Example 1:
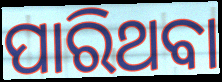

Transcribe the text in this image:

ପାରିଥବା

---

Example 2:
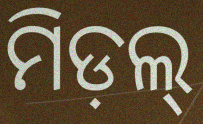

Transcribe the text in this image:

ମିଡ଼ଲ୍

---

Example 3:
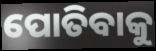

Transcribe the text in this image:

ପୋତିବାକୁ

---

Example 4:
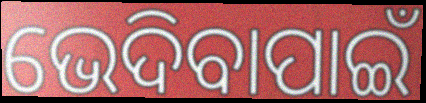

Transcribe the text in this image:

ଭେଦିବାପାଇଁ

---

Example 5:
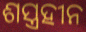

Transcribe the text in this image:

ଶସ୍ତ୍ରହୀନ